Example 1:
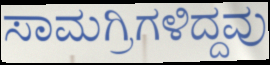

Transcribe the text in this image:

ಸಾಮಗ್ರಿಗಳಿದ್ದವು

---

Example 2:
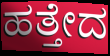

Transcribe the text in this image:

ಹತ್ತೇದ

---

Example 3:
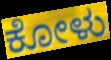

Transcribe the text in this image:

ಕೋಳು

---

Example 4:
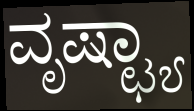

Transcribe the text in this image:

ವೃಷ್ಟ್ಯಾ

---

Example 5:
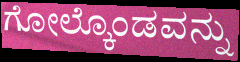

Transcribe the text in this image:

ಗೋಲ್ಕೊಂಡವನ್ನು